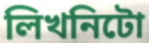
লিখনিটো